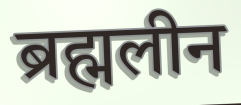
ब्रह्मलीन